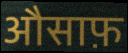
औसाफ़